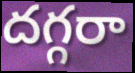
దగ్గరా